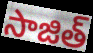
సాజిత్